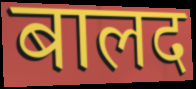
बालद